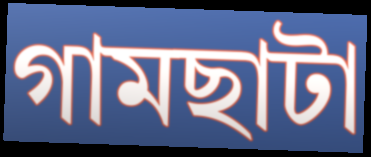
গামছাটা